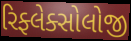
રિફ્લેક્સોલોજી